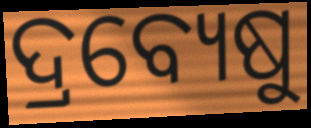
ଦ୍ରବ୍ୟେଷୁ